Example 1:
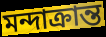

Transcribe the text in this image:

মন্দাক্রান্ত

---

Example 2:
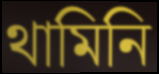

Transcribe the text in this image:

থামিনি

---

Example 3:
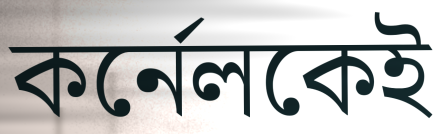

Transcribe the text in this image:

কর্নেলকেই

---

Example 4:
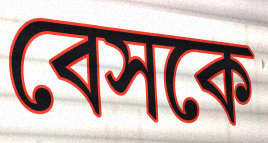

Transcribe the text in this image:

বেসকে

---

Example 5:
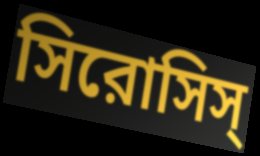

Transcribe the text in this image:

সিরোসিস্